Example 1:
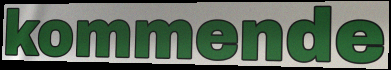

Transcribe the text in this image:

kommende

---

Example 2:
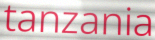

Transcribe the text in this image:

tanzania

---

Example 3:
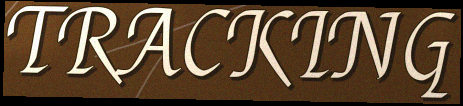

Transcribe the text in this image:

TRACKING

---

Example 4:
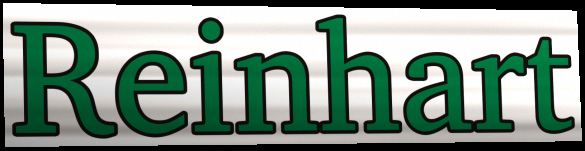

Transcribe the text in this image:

Reinhart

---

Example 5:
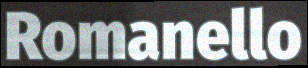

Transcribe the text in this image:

Romanello